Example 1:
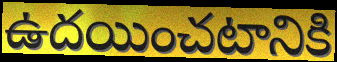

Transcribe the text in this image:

ఉదయించటానికి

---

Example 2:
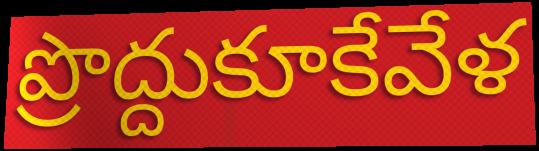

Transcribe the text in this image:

ప్రొద్దుకూకేవేళ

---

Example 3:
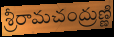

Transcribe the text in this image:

శ్రీరామచంద్రుణ్ణి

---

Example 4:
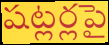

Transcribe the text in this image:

షట్లర్లపై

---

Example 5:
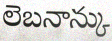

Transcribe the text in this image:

లెబనాన్కు